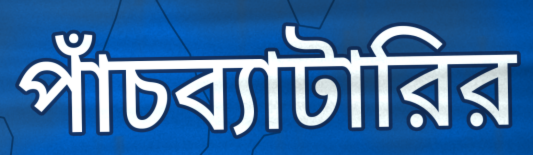
পাঁচব্যাটারির